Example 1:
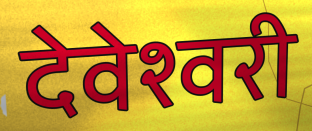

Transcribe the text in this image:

देवेश्वरी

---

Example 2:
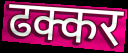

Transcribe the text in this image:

ढक्कर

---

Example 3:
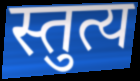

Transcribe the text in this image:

स्तुत्य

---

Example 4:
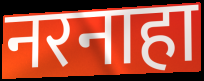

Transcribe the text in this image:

नरनाहा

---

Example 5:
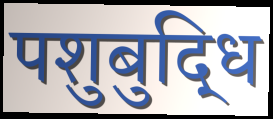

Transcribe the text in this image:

पशुबुद्धि